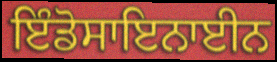
ਇੰਡੋਸਾਇਨਾਈਨ